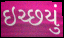
ઇચ્છયું